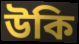
উকি